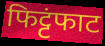
फिट्टंफाट